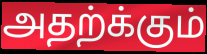
அதற்க்கும்